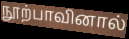
நூற்பாவினால்